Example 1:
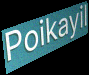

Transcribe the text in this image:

Poikayil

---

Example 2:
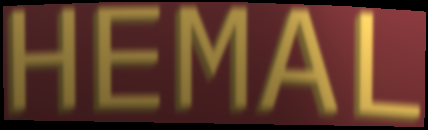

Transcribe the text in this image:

HEMAL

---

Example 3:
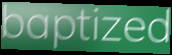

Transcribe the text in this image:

baptized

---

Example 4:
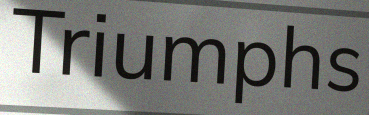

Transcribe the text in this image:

Triumphs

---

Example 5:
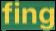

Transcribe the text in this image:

fing